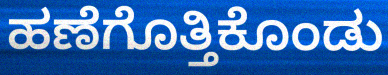
ಹಣೆಗೊತ್ತಿಕೊಂಡು